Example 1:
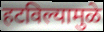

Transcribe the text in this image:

हटविल्यामुळे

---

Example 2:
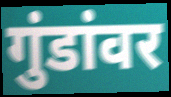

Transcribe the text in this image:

गुंडांवर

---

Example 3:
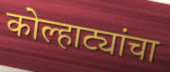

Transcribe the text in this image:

कोल्हाट्यांचा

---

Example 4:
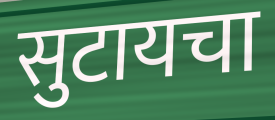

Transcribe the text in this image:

सुटायचा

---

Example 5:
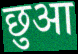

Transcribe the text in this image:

छुआ